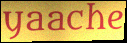
yaache